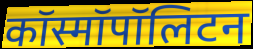
कॉस्मॉपॉलिटन